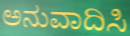
ಅನುವಾದಿಸಿ